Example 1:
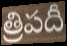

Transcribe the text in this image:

త్రిపదీ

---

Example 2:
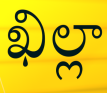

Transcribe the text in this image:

ఖిల్లా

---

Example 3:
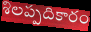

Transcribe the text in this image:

శిలప్పదికారం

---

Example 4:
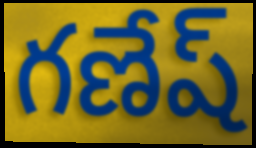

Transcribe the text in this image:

గణేష్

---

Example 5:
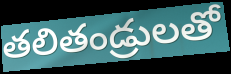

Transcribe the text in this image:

తలితండ్రులతో